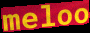
meloo